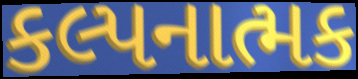
કલ્પનાત્મક